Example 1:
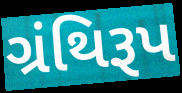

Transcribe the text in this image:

ગ્રંથિરૂપ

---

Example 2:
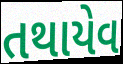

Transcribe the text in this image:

તથાયેવ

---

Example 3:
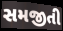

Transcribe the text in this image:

સમજીતી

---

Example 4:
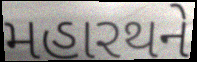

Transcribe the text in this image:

મહારથને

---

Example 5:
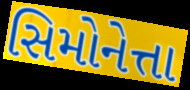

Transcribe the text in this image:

સિમોનેત્તા